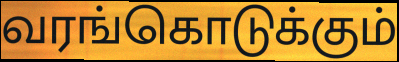
வரங்கொடுக்கும்